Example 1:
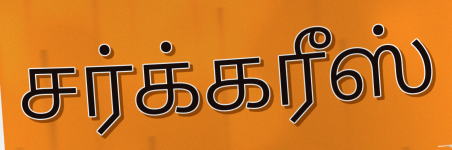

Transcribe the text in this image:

சர்க்கரீஸ்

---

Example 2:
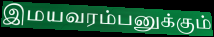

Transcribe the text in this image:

இமயவரம்பனுக்கும்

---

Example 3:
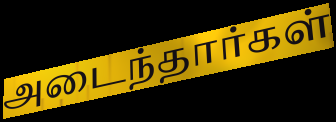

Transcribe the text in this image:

அடைந்தார்கள்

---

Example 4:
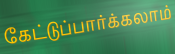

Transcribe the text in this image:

கேட்டுப்பார்க்கலாம்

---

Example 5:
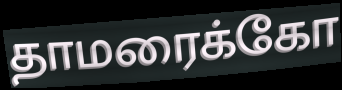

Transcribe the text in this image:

தாமரைக்கோ